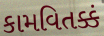
કામવિતક્કં